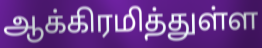
ஆக்கிரமித்துள்ள